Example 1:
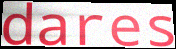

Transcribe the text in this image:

dares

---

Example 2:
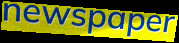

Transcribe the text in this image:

newspaper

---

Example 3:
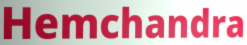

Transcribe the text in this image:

Hemchandra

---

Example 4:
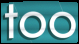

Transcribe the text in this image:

too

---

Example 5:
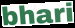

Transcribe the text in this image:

bhari